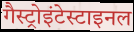
गैस्ट्रोइंटेस्टाइनल